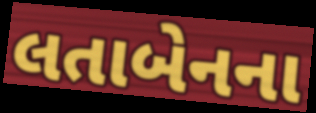
લતાબેનના